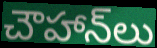
చౌహాన్‌లు